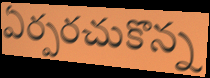
ఏర్పరచుకొన్న